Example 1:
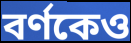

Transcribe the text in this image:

বর্ণকেও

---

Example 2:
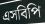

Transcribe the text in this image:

এসবিপি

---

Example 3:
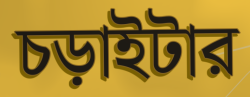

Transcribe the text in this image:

চড়াইটার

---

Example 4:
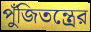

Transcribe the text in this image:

পুঁজিতন্ত্রের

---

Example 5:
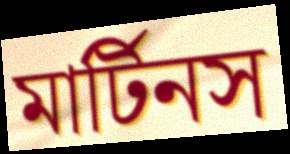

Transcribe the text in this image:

মার্টিনস